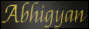
Abhigyan